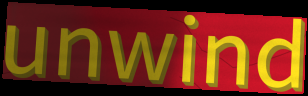
unwind